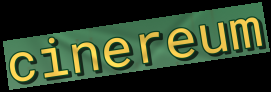
cinereum